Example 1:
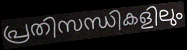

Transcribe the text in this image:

പ്രതിസന്ധികളിലും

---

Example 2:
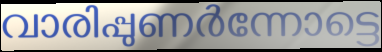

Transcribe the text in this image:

വാരിപ്പുണർന്നോട്ടെ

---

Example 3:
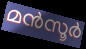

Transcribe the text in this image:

മൻസൂർ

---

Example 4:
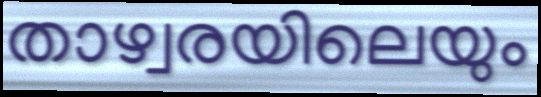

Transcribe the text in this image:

താഴ്വരയിലെയും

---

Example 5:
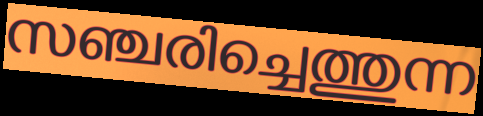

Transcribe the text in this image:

സഞ്ചരിച്ചെത്തുന്ന